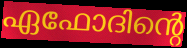
ഏഫോദിന്റെ